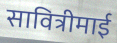
सावित्रीमाई